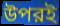
উপরই